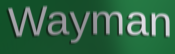
Wayman